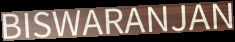
BISWARANJAN